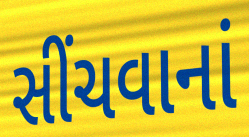
સીંચવાનાં